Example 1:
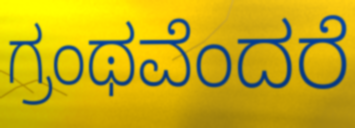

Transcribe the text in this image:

ಗ್ರಂಥವೆಂದರೆ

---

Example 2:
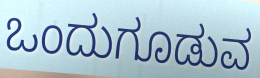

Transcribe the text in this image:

ಒಂದುಗೂಡುವ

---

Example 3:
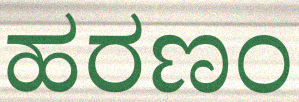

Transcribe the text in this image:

ಹರಣಂ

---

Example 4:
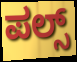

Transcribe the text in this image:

ಪಲ್ಸ್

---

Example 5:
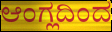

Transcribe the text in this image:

ಆಂಗ್ಲದಿಂದ